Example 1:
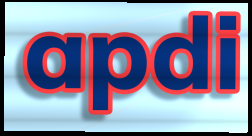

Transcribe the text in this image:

apdi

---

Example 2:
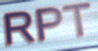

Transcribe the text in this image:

RPT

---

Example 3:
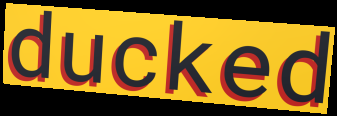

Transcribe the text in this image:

ducked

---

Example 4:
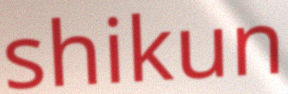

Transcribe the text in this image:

shikun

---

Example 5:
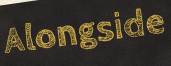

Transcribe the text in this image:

Alongside